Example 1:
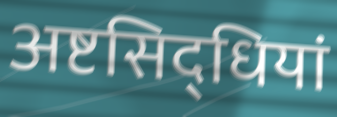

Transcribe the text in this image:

अष्टसिद्धियां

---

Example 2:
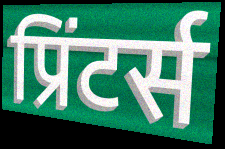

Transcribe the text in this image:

प्रिंटर्स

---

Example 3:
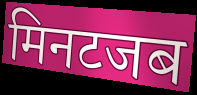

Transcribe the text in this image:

मिनटजब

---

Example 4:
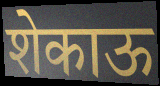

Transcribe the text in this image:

शेकाऊ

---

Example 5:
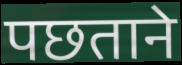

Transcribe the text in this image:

पछताने